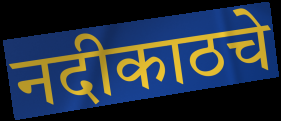
नदीकाठचे